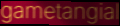
gametangial